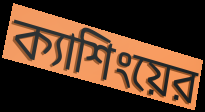
ক্যাশিংয়ের